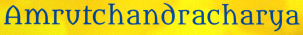
Amrutchandracharya